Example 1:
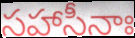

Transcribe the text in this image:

సహాసీనాః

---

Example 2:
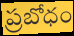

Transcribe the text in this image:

ప్రబోధం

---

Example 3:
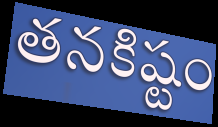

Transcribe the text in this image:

తనకిష్టం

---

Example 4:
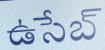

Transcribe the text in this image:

ఉసేబ్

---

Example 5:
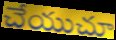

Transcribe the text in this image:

చేయుచూ